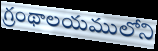
గ్రంథాలయములోని